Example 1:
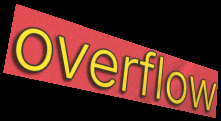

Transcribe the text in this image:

overflow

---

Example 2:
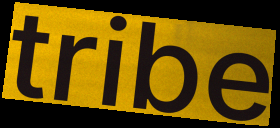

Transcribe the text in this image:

tribe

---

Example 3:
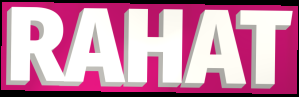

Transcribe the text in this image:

RAHAT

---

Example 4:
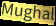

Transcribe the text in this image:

Mughal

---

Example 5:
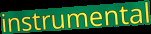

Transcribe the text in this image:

instrumental